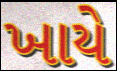
ખાયે